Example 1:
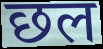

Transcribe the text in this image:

छल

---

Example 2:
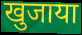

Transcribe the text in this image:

खुजाया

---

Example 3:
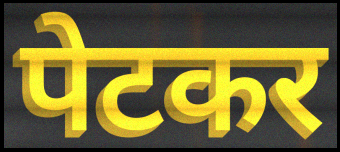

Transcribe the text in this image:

पेटकर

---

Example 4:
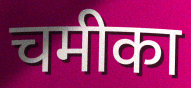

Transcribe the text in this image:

चमीका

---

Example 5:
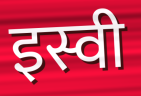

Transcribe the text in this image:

इस्वी